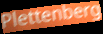
Plettenberg